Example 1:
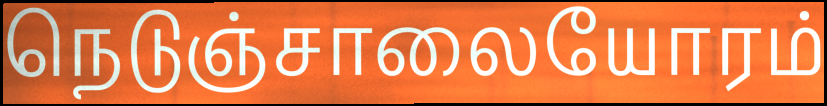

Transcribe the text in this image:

நெடுஞ்சாலையோரம்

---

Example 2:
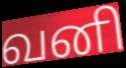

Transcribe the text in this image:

வனி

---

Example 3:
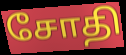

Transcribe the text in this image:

சோதி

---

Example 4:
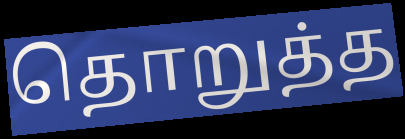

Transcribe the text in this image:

தொறுத்த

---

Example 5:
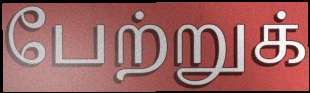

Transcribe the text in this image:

பேற்றுக்